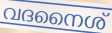
വദനൈശ്